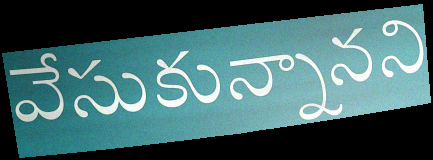
వేసుకున్నానని